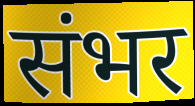
संभर